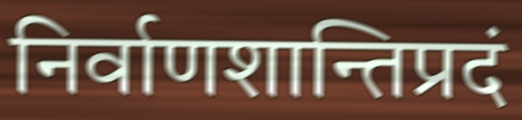
निर्वाणशान्तिप्रदं